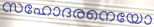
സഹോദരനെയോ